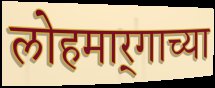
लोहमार्गाच्या